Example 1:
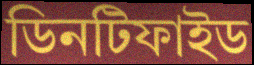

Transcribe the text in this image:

ডিনটিফাইড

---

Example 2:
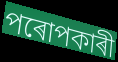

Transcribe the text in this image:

পৰোপকাৰী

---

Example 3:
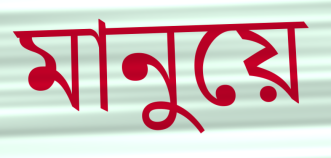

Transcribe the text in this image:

মানুয়ে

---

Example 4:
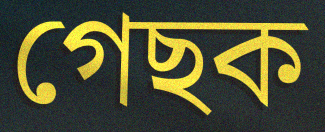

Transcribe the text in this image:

গেছক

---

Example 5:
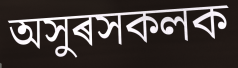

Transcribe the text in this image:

অসুৰসকলক